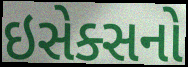
ઇસેક્સનો